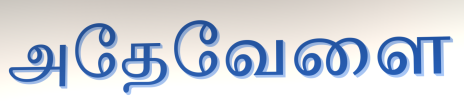
அதேவேளை